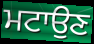
ਮਟਾਉਣ